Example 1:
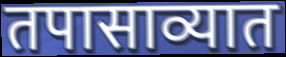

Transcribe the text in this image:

तपासाव्यात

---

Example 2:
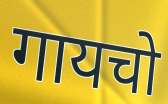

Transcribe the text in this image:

गायचो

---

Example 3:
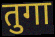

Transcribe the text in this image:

तुगा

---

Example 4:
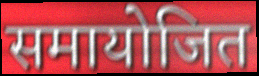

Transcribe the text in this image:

समायोजित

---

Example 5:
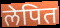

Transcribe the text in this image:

लेपित